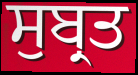
ਸੁਬ੍ਰਤ